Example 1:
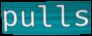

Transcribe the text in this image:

pulls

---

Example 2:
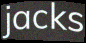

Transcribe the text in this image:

jacks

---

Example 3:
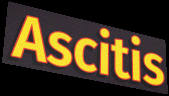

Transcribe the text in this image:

Ascitis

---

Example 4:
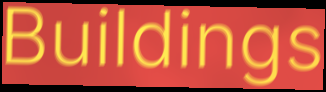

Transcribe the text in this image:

Buildings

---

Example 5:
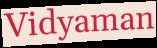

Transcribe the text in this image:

Vidyaman